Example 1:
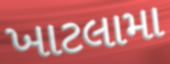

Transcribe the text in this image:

ખાટલામા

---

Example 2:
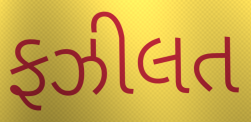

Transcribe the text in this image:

ફઝીલત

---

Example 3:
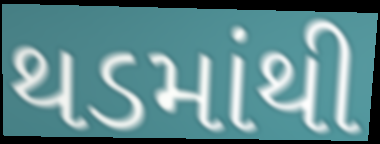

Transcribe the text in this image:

થડમાંથી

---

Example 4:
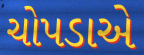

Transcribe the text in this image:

ચોપડાએ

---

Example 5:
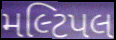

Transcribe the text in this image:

મલ્ટિપલ